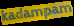
kadampam